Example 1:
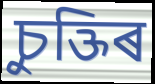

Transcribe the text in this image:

চুক্তিৰ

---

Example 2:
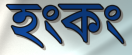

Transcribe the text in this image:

হংকং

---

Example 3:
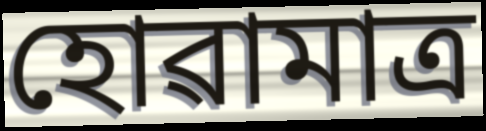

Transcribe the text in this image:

হোৱামাত্ৰ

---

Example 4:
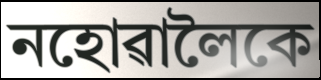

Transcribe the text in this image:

নহোৱালৈকে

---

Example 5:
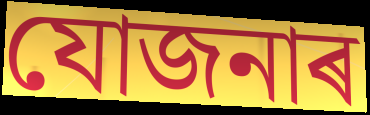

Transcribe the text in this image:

যোজনাৰ